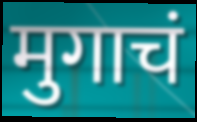
मुगाचं